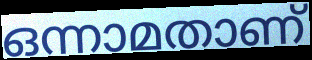
ഒന്നാമതാണ്